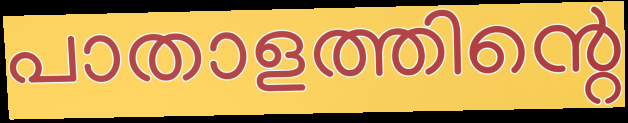
പാതാളത്തിന്റെ